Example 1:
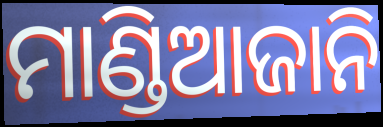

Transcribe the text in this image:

ମାଣ୍ଡିଆଜାନି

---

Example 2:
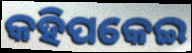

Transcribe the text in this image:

କହିପକେଇ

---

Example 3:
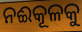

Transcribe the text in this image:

ନଈକୂଳକୁ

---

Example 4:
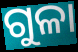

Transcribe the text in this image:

ଗୁଳା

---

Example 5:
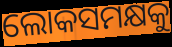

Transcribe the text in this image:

ଲୋକସମକ୍ଷକୁ